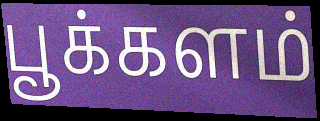
பூக்களம்